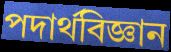
পদার্থবিজ্ঞান